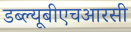
डब्ल्यूबीएचआरसी